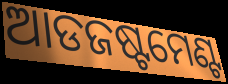
ଆଡଜଷ୍ଟମେଣ୍ଟ